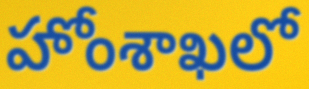
హోంశాఖలో